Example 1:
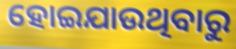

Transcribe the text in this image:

ହୋଇଯାଉଥିବାରୁ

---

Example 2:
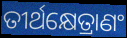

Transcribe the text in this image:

ତୀର୍ଥକ୍ଷେତ୍ରାଣଂ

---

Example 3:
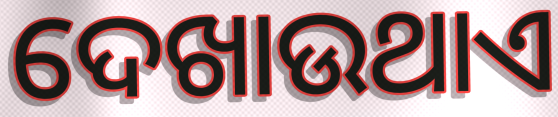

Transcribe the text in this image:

ଦେଖାଉଥାଏ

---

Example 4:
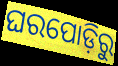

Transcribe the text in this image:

ଘରପୋଡ଼ିରୁ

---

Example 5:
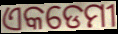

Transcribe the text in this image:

ଏକଡେମୀ